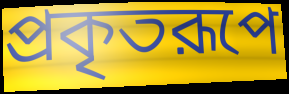
প্রকৃতরূপে